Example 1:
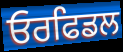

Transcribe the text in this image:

ਓਰਫਿਡਲ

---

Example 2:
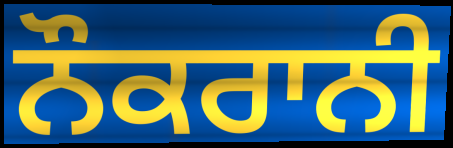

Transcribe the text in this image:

ਨੌਕਰਾਨੀ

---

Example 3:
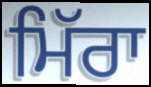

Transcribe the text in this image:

ਮਿੱਰਾ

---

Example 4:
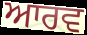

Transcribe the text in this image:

ਆਰਵ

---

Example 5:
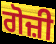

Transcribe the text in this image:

ਗੋਜ਼ੀ